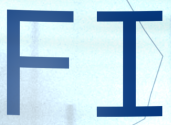
FI